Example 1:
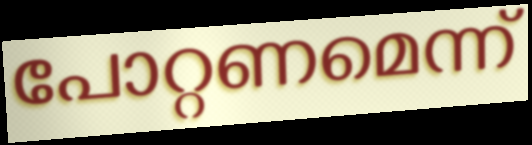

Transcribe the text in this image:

പോറ്റണമെന്ന്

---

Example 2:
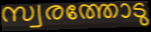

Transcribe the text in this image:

സ്വരത്തോടു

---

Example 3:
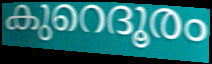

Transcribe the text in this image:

കുറെദൂരം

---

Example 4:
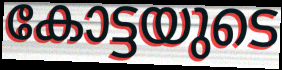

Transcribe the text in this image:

കോട്ടയുടെ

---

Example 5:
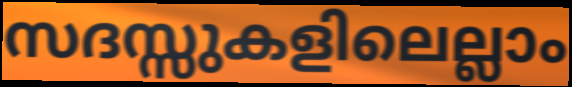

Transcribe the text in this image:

സദസ്സുകളിലെല്ലാം